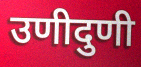
उणीदुणी